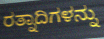
ರತ್ನಾದಿಗಳನ್ನು